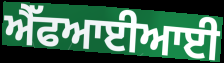
ਐੱਫਆਈਆਈ